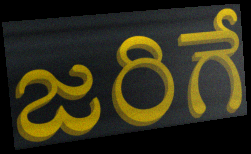
జరిగే